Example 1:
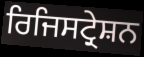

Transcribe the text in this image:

ਰਿਜਿਸਟ੍ਰੇਸ਼ਨ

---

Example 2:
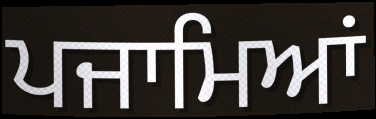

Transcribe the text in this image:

ਪਜਾਮਿਆਂ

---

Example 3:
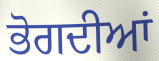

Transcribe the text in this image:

ਭੋਗਦੀਆਂ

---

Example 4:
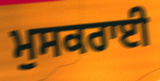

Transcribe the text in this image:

ਮੁਸਕਰਾਈ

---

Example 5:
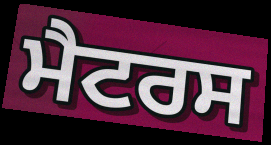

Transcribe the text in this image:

ਮੈਟਰਸ